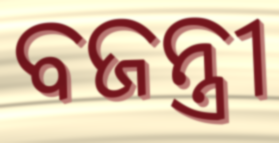
ବଜନ୍ତ୍ରୀ